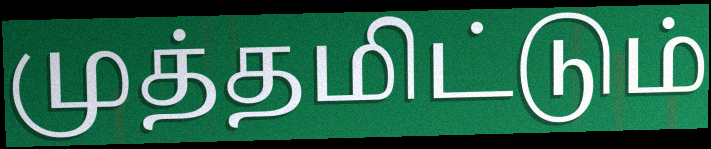
முத்தமிட்டும்